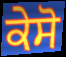
ਕੇਸੋ